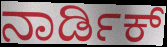
ನಾರ್ಡಿಕ್